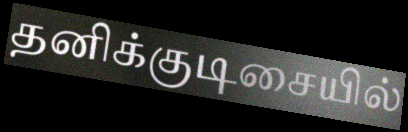
தனிக்குடிசையில்